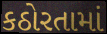
કઠોરતામાં